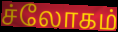
ச்லோகம்